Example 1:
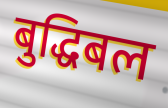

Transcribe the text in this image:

बुद्धिबल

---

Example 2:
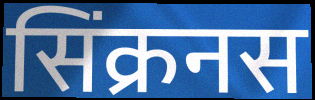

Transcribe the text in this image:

सिंक्रनस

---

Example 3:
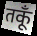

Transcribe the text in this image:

तकूँ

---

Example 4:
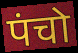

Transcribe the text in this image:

पंचो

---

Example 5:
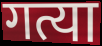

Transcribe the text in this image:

गत्या